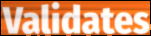
Validates